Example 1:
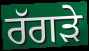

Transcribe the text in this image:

ਰੱਗੜੇ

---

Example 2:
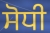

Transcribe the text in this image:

ਸੋਧੀ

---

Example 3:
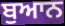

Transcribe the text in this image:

ਬੁਆਨ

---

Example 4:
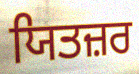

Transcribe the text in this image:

ਯਿਤਜ਼ਰ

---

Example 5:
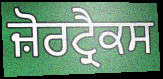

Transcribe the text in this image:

ਜ਼ੋਰਟ੍ਰੈਕਸ